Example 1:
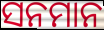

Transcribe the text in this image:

ସନମାନ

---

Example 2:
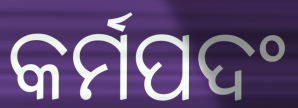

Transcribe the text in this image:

କର୍ମପଦଂ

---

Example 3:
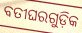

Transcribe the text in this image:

ବତୀଘରଗୁଡ଼ିକ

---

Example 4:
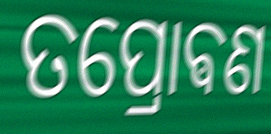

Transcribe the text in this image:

ତପ୍ରୋଵଣ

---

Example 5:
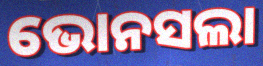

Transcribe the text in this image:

ଭୋନସଲା